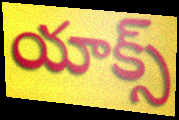
యాక్స్